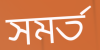
সমর্ত